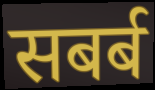
सबर्ब